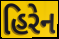
હિરેન